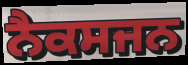
ਨੈਕਸਜਨ